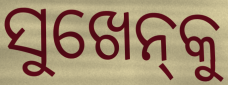
ସୁଖେନ୍‌କୁ